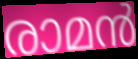
രാമൻ